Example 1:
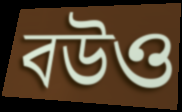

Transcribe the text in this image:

বউও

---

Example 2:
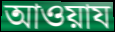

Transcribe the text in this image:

আওয়ায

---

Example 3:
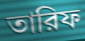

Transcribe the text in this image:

তারিফ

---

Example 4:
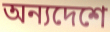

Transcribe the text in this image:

অন্যদেশে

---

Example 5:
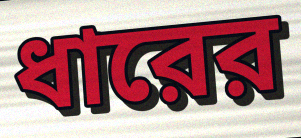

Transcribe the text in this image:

ধারের